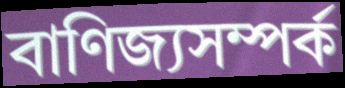
বাণিজ্যসম্পর্ক